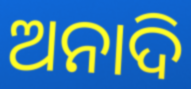
ଅନାଦି